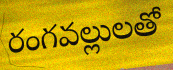
రంగవల్లులతో